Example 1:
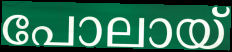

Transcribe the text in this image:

പോലായ്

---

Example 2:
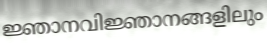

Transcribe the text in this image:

ജ്ഞാനവിജ്ഞാനങ്ങളിലും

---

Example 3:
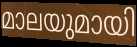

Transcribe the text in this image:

മാലയുമായി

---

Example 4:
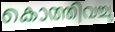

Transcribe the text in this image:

കൊത്തിവച്ചു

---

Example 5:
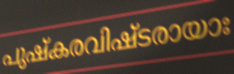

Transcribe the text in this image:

പുഷ്കരവിഷ്ടരായാഃ